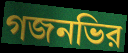
গজনভির